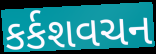
કર્કશવચન